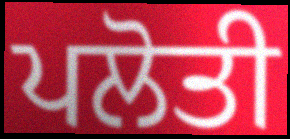
ਪਲੋਤੀ